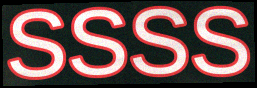
SSSS